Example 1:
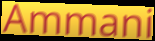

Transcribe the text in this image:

Ammani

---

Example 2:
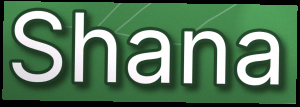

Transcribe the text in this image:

Shana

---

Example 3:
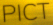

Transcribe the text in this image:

PICT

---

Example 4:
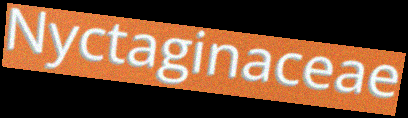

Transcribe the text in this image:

Nyctaginaceae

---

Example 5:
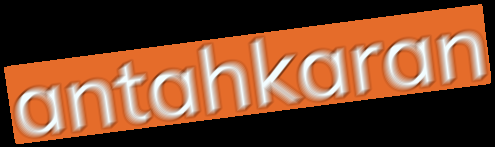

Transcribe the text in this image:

antahkaran